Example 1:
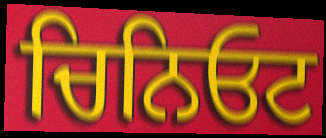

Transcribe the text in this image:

ਚਿਨਿਓਟ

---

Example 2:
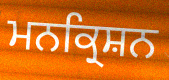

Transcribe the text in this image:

ਮਨਕ੍ਰਿਸ਼ਨ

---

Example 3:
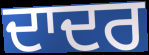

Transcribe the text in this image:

ਦਾਦਰ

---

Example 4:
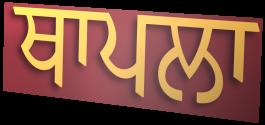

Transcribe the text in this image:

ਥਾਪਲਾ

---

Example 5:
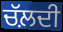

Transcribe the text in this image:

ਚੱਲ਼ਦੀ